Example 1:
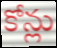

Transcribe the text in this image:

కోన్లు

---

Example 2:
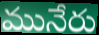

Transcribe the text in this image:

మునేరు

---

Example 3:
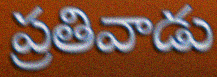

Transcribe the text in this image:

ప్రతివాడు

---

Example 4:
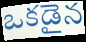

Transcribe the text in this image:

ఒకడైన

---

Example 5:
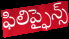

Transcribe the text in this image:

ఫిలిప్ఫైన్స్